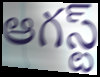
ఆగస్ట్